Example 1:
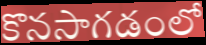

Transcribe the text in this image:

కొనసాగడంలో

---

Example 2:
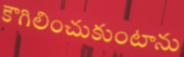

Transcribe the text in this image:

కౌగిలించుకుంటాను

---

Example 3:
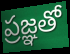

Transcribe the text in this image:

ప్రజ్ఞతో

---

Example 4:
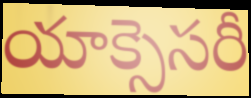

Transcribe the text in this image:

యాక్సెసరీ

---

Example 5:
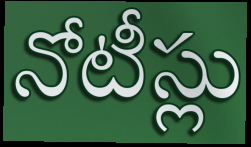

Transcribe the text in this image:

నోటీస్లు